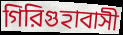
গিরিগুহাবাসী